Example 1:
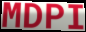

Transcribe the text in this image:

MDPI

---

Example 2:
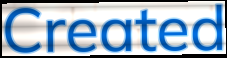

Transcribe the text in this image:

Created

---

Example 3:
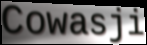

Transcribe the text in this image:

Cowasji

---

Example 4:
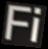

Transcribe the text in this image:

Fi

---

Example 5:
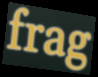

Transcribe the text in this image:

frag